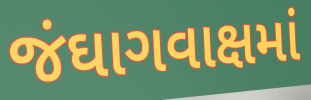
જંઘાગવાક્ષમાં